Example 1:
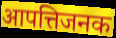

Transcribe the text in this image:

आपत्तिजनक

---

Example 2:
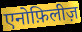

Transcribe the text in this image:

एनोफ़िलीज़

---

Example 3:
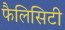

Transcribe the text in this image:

फैलिसिटी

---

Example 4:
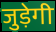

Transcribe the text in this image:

जुड़ेगी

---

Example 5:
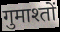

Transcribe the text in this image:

गुमाश्तों